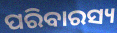
ପରିବାରସ୍ୟ